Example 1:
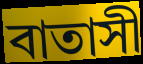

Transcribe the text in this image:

বাতাসী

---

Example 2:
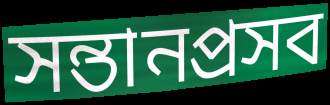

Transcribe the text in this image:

সন্তানপ্রসব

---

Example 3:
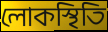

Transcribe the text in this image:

লোকস্থিতি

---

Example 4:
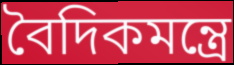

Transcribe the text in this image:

বৈদিকমন্ত্রে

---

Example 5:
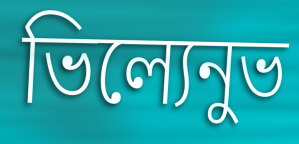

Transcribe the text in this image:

ভিল্যেনুভ